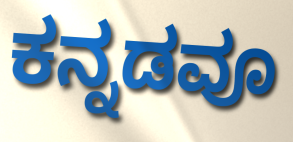
ಕನ್ನಡವೂ